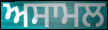
ਅਸਾਮਲ